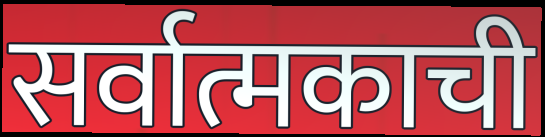
सर्वात्मकाची